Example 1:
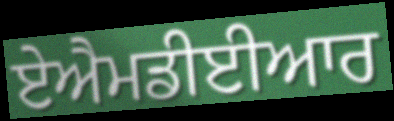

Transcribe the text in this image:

ਏਐਮਡੀਈਆਰ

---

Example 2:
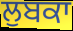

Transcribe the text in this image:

ਲੁਬਕਾ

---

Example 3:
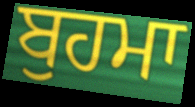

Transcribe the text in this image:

ਬੁਹਮਾ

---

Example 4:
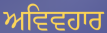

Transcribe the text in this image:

ਅਵਿਵਹਾਰ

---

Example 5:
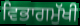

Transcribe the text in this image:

ਵਿਭਾਗਮੁੱਖੀ